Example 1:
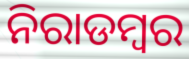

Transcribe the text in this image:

ନିରାଡମ୍ଵର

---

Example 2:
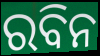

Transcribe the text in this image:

ରବିନ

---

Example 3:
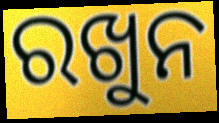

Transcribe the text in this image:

ରଖୁନ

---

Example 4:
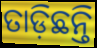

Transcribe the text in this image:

ତାଡ଼ିଛନ୍ତି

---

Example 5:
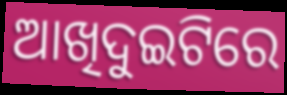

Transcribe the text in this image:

ଆଖିଦୁଇଟିରେ